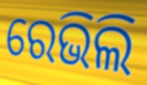
ରେଭିଲି